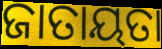
ଜାତାୟତା